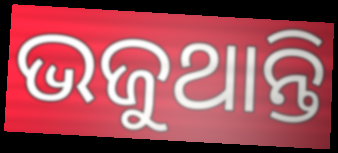
ଭଜୁଥାନ୍ତି